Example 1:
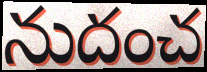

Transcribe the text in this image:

నుదంచ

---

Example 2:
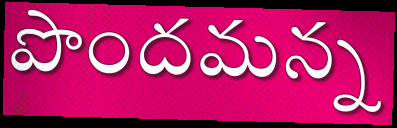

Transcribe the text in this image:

పొందమన్న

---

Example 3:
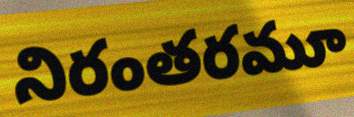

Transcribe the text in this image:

నిరంతరమూ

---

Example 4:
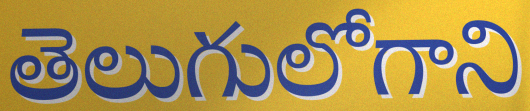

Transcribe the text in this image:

తెలుగులోగాని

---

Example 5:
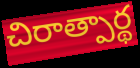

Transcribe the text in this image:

చిరాత్పార్థ